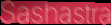
Sashastra